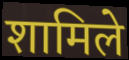
शामिले